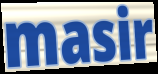
masir